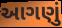
આગણું